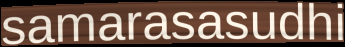
samarasasudhi